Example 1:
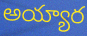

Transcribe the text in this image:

అయ్యార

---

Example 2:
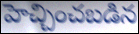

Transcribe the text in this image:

హెచ్చించబడిన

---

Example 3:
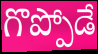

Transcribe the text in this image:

గొప్పోడే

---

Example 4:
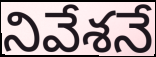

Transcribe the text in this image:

నివేశనే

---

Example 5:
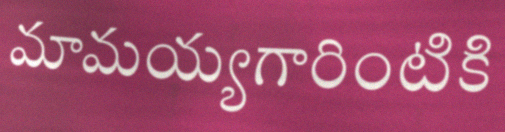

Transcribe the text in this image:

మామయ్యగారింటికి